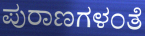
ಪುರಾಣಗಳಂತೆ